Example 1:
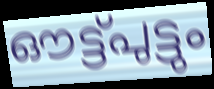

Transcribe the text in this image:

ഔട്ട്പുട്ടും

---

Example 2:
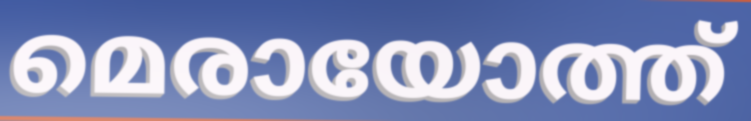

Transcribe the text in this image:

മെരായോത്ത്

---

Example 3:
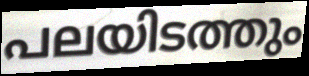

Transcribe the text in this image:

പലയിടത്തും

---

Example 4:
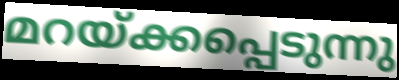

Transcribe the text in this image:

മറയ്ക്കപ്പെടുന്നു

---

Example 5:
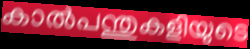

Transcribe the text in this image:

കാൽപന്തുകളിയുടെ